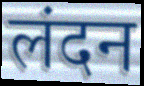
लंदन